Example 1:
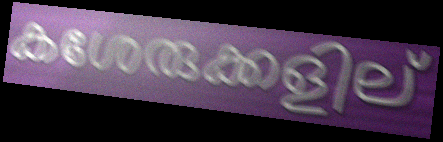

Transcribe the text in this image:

കശേരുക്കളില്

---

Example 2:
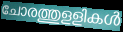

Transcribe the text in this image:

ചോരത്തുളളികൾ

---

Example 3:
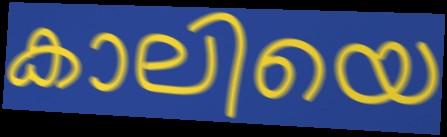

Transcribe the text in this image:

കാലിയെ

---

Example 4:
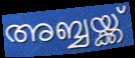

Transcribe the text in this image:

അബ്ബയ്ക്ക്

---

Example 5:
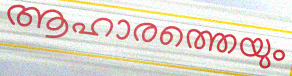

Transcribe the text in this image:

ആഹാരത്തെയും